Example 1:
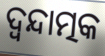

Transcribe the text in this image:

ଦ୍ଵନ୍ଦାତ୍ମକ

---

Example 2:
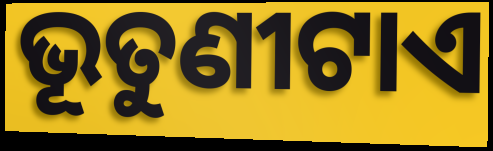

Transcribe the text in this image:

ଭୂତୁଣୀଟାଏ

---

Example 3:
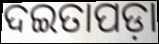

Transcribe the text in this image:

ଦଇତାପଡ଼ା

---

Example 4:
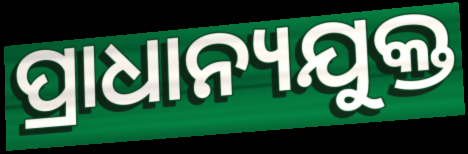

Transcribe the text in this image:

ପ୍ରାଧାନ୍ୟଯୁକ୍ତ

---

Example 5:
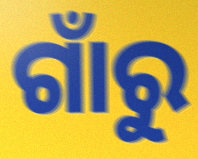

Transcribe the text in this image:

ଗାଁରୁ